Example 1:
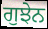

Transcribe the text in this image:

ਗੁਝੇਨ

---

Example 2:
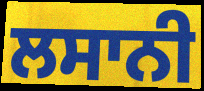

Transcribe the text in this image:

ਲਸਾਨੀ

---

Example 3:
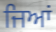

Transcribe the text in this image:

ਜਿਆਂ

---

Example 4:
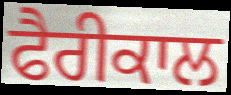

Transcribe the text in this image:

ਫੈਰੀਕਾਲ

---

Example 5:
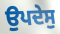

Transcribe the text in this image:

ਉਪਦੇਸੁ